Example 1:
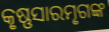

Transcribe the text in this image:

କୃଷ୍ଣସାରମୃଗଙ୍କ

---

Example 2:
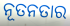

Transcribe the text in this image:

ନୂତନତାର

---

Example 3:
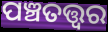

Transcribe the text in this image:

ପଞ୍ଚତତ୍ତ୍ୱର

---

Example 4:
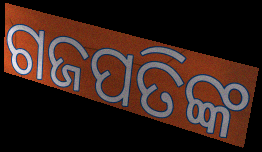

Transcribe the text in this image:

ଗଜପତିଙ୍କ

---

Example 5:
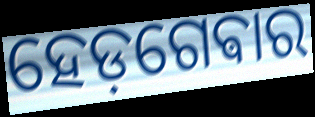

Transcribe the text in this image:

ହେଡ଼ଗେଵାର